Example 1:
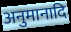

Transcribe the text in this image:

अनुमानादि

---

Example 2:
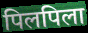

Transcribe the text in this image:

पिलपिला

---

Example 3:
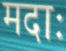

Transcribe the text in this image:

मदाः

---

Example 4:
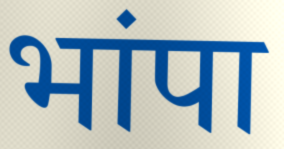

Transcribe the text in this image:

भांपा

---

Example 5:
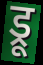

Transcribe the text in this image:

ड्रू